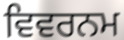
ਵਿਵਰਨਮ